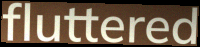
fluttered